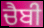
ਚੈਬੀ